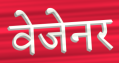
वेजेनर